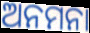
ଅନମନା